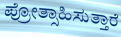
ಪ್ರೋತ್ಸಾಹಿಸುತ್ತಾರೆ